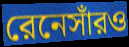
রেনেসাঁরও